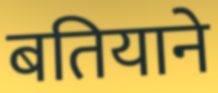
बतियाने